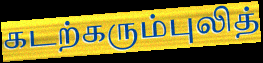
கடற்கரும்புலித்